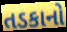
તડકાનો